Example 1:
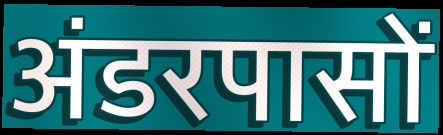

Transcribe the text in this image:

अंडरपासों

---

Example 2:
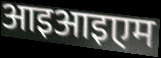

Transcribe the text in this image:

आइआइएम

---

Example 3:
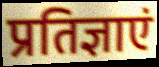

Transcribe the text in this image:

प्रतिज्ञाएं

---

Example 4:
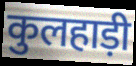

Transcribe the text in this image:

कुलहाड़ी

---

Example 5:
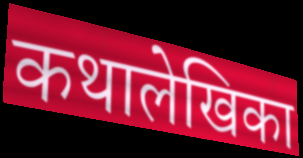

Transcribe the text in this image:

कथालेखिका